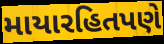
માયારહિતપણે